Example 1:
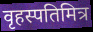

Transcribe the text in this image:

वृहस्पतिमित्र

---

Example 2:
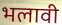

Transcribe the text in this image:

भलावी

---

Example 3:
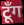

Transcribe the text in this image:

टूँग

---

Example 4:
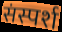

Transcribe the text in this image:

संस्पर्श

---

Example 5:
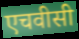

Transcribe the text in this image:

एचवीसी